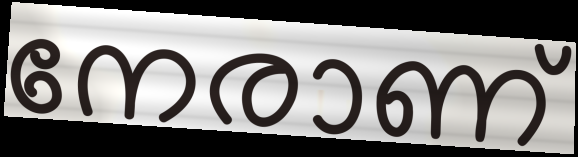
നേരാണ്